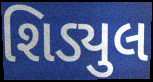
શિડ્યુલ